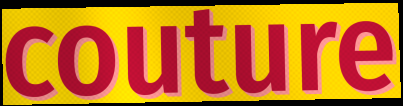
couture